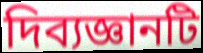
দিব্যজ্ঞানটি